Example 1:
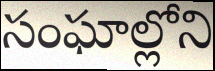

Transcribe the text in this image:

సంఘాల్లోని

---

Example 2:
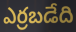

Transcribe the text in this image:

ఎర్రబడేది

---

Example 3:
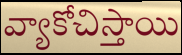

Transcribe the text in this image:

వ్యాకోచిస్తాయి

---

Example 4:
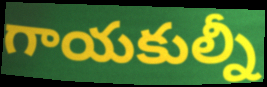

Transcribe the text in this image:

గాయకుల్నీ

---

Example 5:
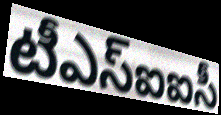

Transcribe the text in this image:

టీఎస్ఐఐసీ